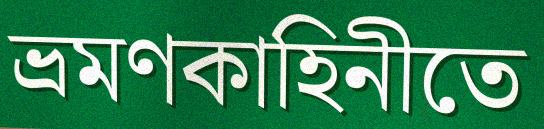
ভ্রমণকাহিনীতে